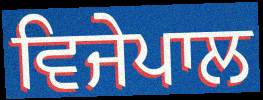
ਵਿਜੇਪਾਲ